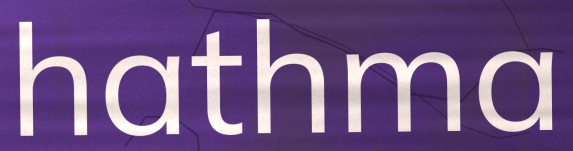
hathma